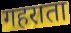
गहराता